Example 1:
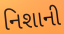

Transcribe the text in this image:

નિશાની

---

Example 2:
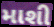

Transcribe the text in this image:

માશી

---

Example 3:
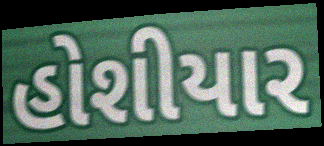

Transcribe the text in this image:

હોશીયાર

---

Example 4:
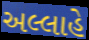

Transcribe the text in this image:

અલ્લાહે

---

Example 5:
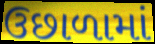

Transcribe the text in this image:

ઉછાળામાં